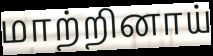
மாற்றினாய்